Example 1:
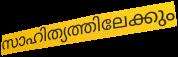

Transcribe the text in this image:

സാഹിത്യത്തിലേക്കും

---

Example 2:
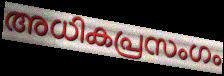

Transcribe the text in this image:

അധികപ്രസംഗം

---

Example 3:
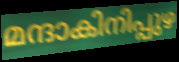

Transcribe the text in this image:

മന്ദാകിനിപ്പുഴ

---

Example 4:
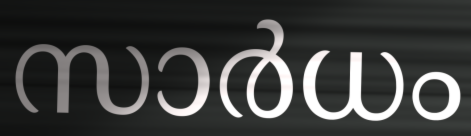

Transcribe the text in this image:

സാർധം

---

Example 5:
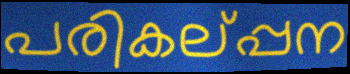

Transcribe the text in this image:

പരികല്പ്പന